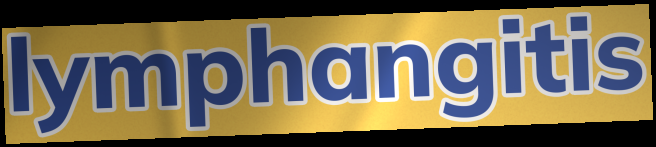
lymphangitis